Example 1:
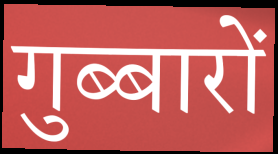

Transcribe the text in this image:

गुब्बारों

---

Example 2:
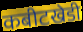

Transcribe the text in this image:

कबीटखेडी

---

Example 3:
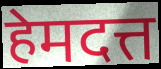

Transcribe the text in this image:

हेमदत्त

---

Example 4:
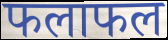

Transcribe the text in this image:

फलाफल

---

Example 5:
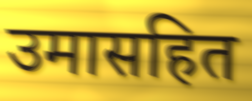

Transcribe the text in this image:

उमासहित